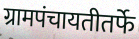
ग्रामपंचायतीतर्फे